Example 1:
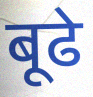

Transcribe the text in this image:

बूढे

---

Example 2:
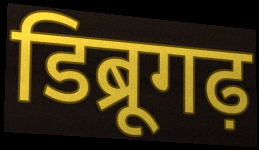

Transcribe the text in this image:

डिब्रूगढ़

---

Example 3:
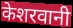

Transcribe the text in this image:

केशरवानी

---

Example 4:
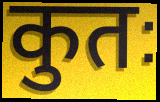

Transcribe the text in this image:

कुतः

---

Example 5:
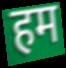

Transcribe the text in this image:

हम